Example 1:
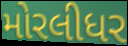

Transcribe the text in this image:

મોરલીધર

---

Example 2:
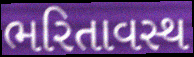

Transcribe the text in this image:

ભરિતાવસ્થ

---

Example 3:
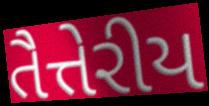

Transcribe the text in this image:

તૈત્તેરીય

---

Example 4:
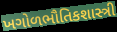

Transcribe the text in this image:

ખગોળભૌતિકશાસ્ત્રી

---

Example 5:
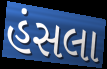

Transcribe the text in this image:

હંસલા